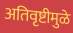
अतिवृष्टीमुळे